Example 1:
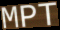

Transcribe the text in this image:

MPT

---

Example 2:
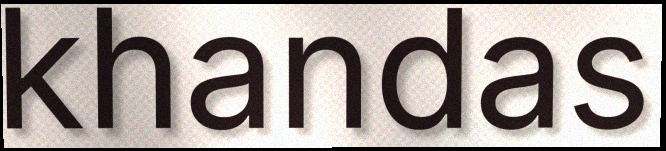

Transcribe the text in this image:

khandas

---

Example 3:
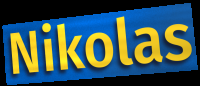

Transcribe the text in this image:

Nikolas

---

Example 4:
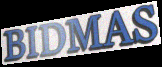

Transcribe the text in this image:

BIDMAS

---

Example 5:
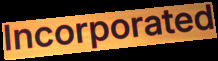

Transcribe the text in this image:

Incorporated